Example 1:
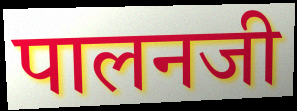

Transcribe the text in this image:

पालनजी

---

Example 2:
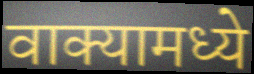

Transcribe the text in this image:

वाक्यामध्ये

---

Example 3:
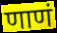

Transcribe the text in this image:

णाणं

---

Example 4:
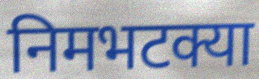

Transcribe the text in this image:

निमभटक्या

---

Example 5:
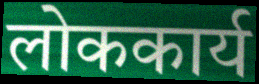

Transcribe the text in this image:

लोककार्य